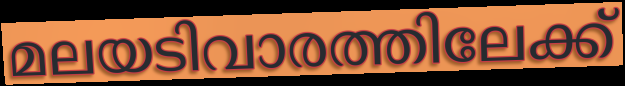
മലയടിവാരത്തിലേക്ക്